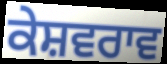
ਕੇਸ਼ਵਰਾਵ